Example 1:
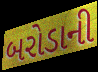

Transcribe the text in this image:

બરોડાની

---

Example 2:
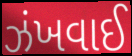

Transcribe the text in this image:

ઝંખવાઈ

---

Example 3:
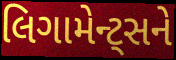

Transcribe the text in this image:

લિગામેન્ટ્સને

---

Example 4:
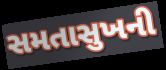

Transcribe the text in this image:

સમતાસુખની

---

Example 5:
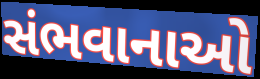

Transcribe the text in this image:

સંભવાનાઓ